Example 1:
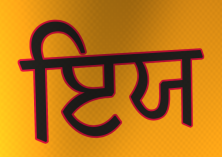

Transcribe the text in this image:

ਇਯ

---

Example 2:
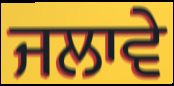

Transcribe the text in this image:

ਜਲਾਵੇ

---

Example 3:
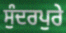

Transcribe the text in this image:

ਸੁੰਦਰਪੁਰੇ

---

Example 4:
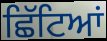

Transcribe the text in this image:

ਛਿੱਟਿਆਂ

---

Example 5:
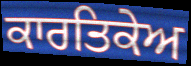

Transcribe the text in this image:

ਕਾਰਤਿਕੇਅ